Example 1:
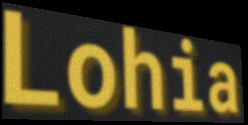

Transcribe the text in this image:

Lohia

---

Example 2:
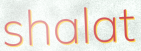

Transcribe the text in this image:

shalat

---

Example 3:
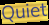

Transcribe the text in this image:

Quiet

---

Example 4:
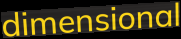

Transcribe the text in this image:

dimensional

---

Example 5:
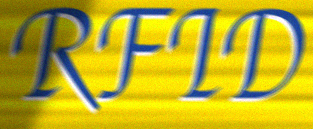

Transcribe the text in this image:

RFID